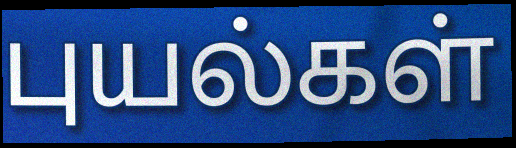
புயல்கள்